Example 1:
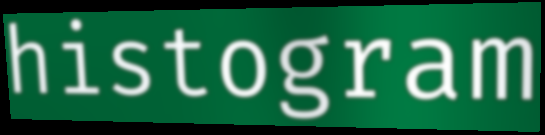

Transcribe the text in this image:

histogram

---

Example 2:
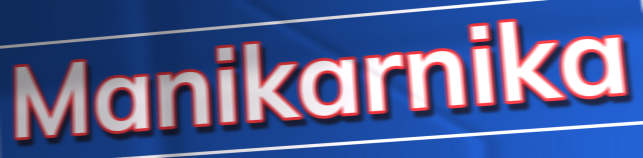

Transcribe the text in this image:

Manikarnika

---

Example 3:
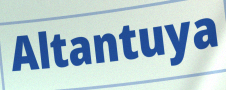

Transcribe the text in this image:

Altantuya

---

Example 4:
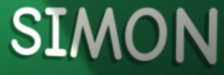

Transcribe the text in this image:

SIMON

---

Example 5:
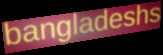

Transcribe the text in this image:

bangladeshs